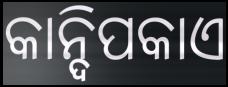
କାନ୍ଦିପକାଏ